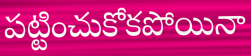
పట్టించుకోకపోయినా